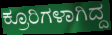
ಕ್ರೂರಿಗಳಾಗಿದ್ದ